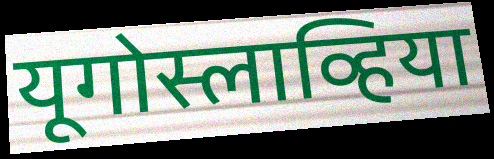
यूगोस्लाव्हिया